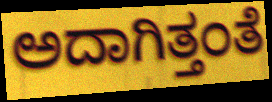
ಅದಾಗಿತ್ತಂತೆ